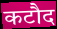
कटौद